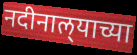
नदीनाल्याच्या